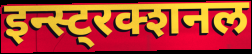
इन्स्ट्रक्शनल